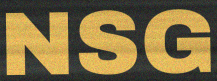
NSG